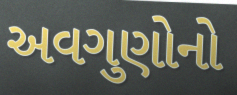
અવગુણોનો